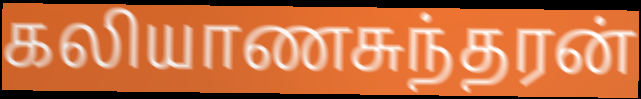
கலியாணசுந்தரன்